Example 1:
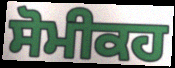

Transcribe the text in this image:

ਸੋਮੀਕਹ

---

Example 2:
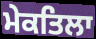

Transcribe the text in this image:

ਮੇਕਤਿਲਾ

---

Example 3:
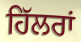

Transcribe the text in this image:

ਹਿੱਲਰਾਂ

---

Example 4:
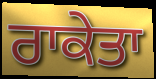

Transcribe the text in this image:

ਰਾਕੇਤਾ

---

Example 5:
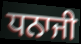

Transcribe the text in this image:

ਧਨਾਜੀ